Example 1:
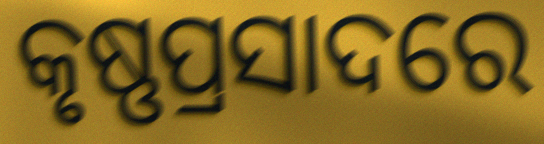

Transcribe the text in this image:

କୃଷ୍ଣପ୍ରସାଦରେ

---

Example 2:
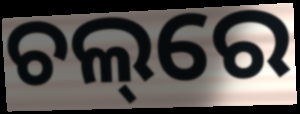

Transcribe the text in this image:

ଚଲ୍‌ରେ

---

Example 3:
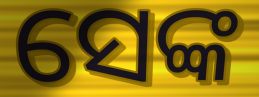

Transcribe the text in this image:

ସେଙ୍କ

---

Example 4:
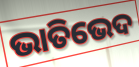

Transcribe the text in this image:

ଭାତିଭେଦ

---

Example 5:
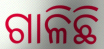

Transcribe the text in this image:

ଗାଳିଛି